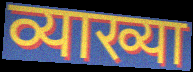
व्याख्या